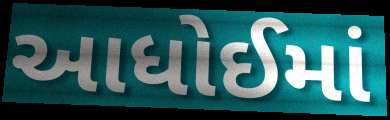
આધોઈમાં